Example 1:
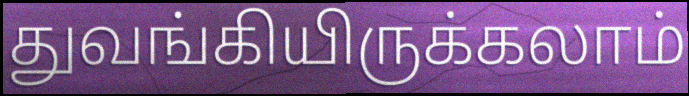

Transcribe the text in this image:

துவங்கியிருக்கலாம்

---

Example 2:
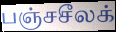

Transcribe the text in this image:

பஞ்சசீலக்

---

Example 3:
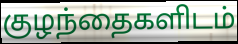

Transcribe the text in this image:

குழந்தைகளிடம்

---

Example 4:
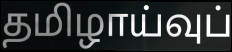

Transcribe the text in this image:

தமிழாய்வுப்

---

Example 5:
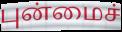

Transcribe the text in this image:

புன்மைச்